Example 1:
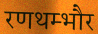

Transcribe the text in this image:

रणथम्भौर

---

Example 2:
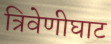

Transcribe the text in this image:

त्रिवेणीघाट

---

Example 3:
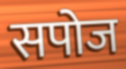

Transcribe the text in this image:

सपोज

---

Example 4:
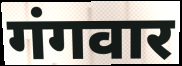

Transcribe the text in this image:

गंगवार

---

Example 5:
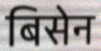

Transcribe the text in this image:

बिसेन